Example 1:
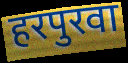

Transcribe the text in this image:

हरपुरवा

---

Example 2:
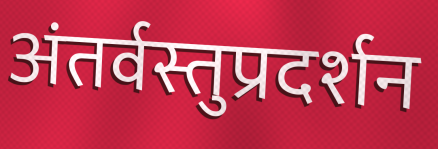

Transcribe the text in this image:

अंतर्वस्तुप्रदर्शन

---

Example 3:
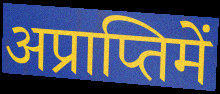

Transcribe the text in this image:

अप्राप्तिमें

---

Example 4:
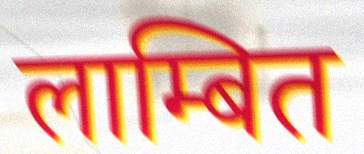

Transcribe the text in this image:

लाम्बित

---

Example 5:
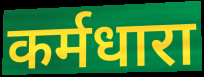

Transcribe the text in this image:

कर्मधारा